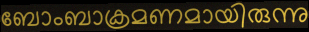
ബോംബാക്രമണമായിരുന്നു